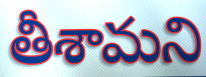
తీశామని